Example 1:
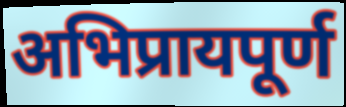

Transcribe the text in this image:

अभिप्रायपूर्ण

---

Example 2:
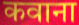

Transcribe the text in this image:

कवाना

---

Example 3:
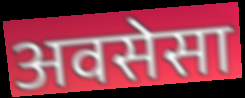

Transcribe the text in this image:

अवसेसा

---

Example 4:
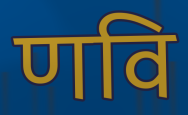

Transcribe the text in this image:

णवि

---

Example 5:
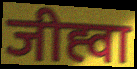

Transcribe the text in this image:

जीह्वा